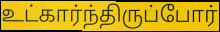
உட்கார்ந்திருப்போர்